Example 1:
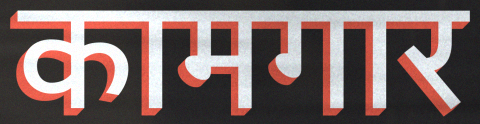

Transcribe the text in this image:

कामगार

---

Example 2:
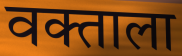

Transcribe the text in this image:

वक्ताला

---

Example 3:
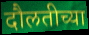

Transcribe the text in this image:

दौलतीच्या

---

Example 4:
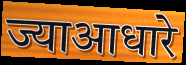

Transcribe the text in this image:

ज्याआधारे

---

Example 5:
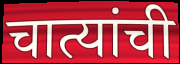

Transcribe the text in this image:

चात्यांची